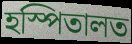
হস্পিতালত